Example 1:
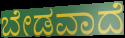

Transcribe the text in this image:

ಬೇಡವಾದೆ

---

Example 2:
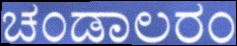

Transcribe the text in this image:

ಚಂಡಾಲರಂ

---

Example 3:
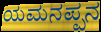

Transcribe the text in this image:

ಯಮನಪ್ಪನ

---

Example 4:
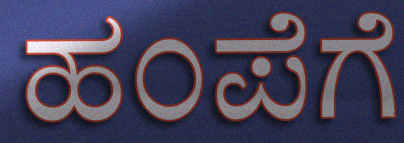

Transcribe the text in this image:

ಹಂಪೆಗೆ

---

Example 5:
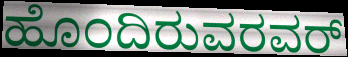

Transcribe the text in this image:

ಹೊಂದಿರುವರವರ್